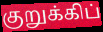
குறுக்கிப்